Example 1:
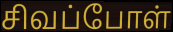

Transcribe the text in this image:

சிவப்போள்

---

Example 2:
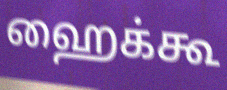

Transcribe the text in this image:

ஹைக்கூ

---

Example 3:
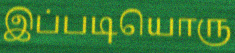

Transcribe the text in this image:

இப்படியொரு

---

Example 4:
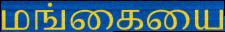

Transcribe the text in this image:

மங்கையை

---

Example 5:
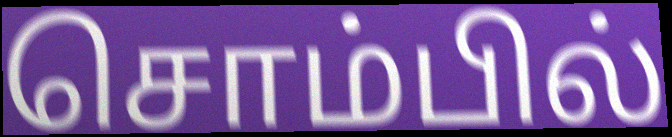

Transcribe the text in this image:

சொம்பில்